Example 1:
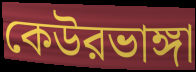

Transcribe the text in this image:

কেউরভাঙ্গা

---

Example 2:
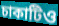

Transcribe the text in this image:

চাকাটিও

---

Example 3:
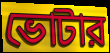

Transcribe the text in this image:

ভোটার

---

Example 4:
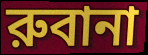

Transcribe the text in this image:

রুবানা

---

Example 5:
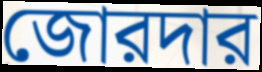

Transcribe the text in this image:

জোরদার